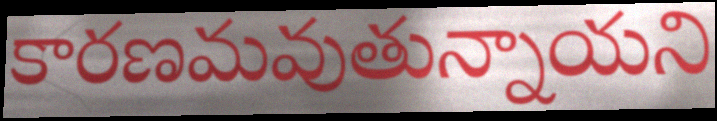
కారణమవుతున్నాయని